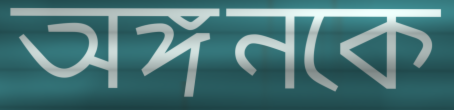
অঙ্গনকে